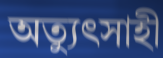
অত্যুৎসাহী